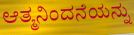
ಆತ್ಮನಿಂದನೆಯನ್ನು